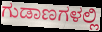
ಗುಡಾಣಗಳಲ್ಲಿ